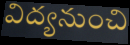
విద్యనుంచి